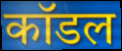
कॉडल